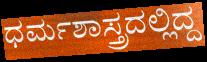
ಧರ್ಮಶಾಸ್ತ್ರದಲ್ಲಿದ್ದ